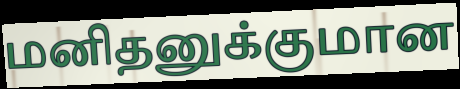
மனிதனுக்குமான